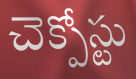
చెక్పోస్టు